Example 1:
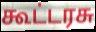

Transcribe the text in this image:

கூட்டரசு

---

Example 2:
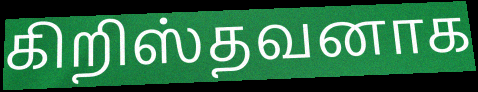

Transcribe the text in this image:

கிறிஸ்தவனாக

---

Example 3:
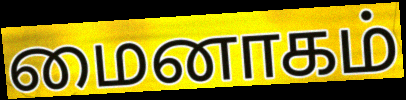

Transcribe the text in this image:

மைனாகம்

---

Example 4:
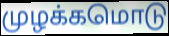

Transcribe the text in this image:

முழக்கமொடு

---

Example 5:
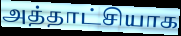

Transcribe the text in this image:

அத்தாட்சியாக